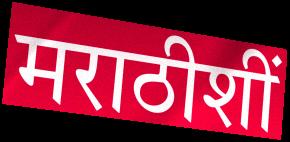
मराठीशीं